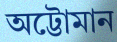
অট্টোমান